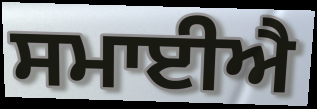
ਸਮਾਈਐ